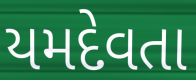
યમદેવતા